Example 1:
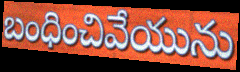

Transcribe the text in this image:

బంధించివేయును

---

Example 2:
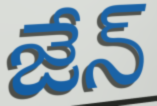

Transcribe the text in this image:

జేన్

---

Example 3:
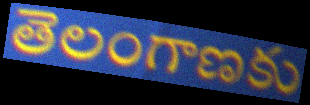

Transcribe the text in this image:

తెలంగాణకు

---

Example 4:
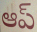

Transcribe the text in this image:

ఆప్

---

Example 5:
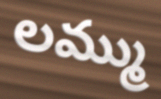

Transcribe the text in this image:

లమ్ము